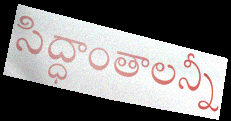
సిద్ధాంతాలన్నీ